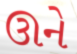
ઊને